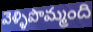
వెళ్ళిపొమ్మంది